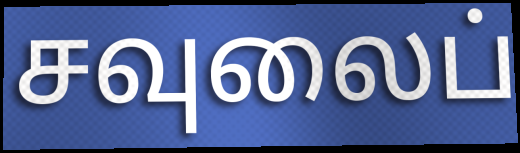
சவுலைப்